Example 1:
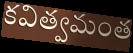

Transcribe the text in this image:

కవిత్వమంత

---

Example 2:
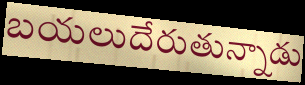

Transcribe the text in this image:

బయలుదేరుతున్నాడు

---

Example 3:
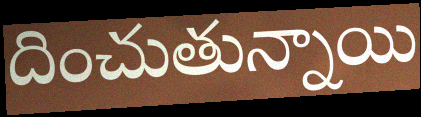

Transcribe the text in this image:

దించుతున్నాయి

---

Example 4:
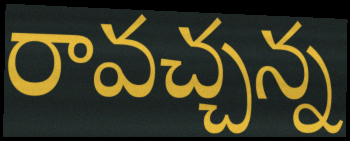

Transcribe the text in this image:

రావచ్చన్న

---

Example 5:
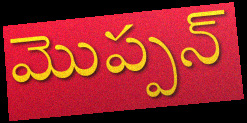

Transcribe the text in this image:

మొప్పన్